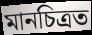
মানচিত্ৰত